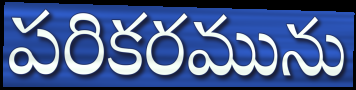
పరికరమును